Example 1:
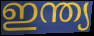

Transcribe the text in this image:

ഇന്ത്യ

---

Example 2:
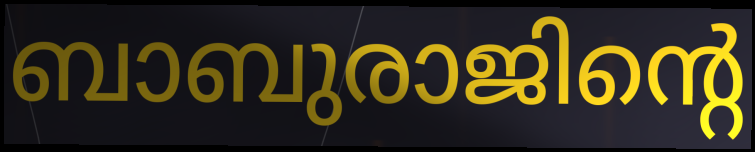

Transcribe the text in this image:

ബാബുരാജിന്റെ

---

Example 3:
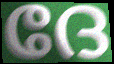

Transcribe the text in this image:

ദേ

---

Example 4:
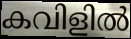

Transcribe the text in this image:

കവിളിൽ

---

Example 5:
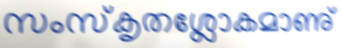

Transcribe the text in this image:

സംസ്കൃതശ്ലോകമാണു്